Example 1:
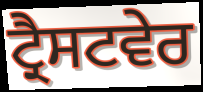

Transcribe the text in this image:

ਟ੍ਰੈਸਟਵੇਰ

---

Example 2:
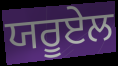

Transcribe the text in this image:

ਯਰੂਏਲ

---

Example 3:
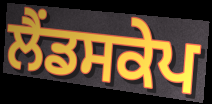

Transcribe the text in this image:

ਲੈਂਡਸਕੇਪ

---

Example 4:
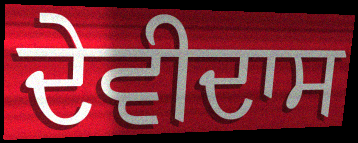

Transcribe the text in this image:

ਦੇਵੀਦਾਸ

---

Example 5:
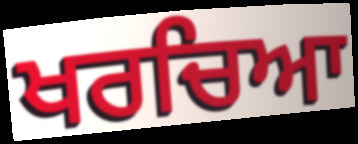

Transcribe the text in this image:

ਖਰਚਿਆ